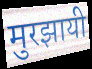
मुरझायी